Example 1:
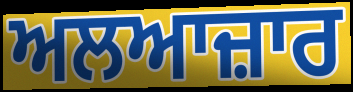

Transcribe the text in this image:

ਅਲਆਜ਼ਾਰ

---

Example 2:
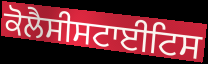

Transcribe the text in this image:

ਕੋਲੈਸੀਸਟਾਈਟਿਸ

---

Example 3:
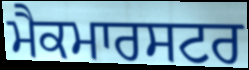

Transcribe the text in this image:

ਮੈਕਮਾਰਸਟਰ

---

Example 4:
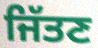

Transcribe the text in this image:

ਜਿੱਤਣ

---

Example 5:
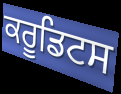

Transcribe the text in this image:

ਕਰੂਡਿਟਸ